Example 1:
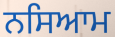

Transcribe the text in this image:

ਨਸਿਆਮ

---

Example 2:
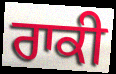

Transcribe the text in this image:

ਰਾਕੀ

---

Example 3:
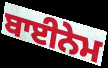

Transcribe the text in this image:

ਬਾਈਨੇਮ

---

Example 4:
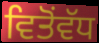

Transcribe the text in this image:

ਵਿਤੋਂਵੱਧ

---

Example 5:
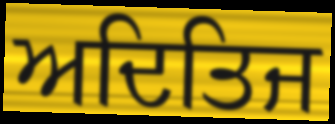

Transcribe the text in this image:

ਅਦਿਤਿਜ